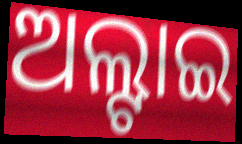
ଅଲ୍ଟାଇ